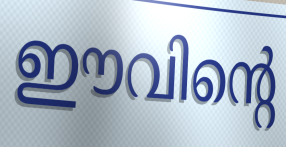
ഈവിന്റെ